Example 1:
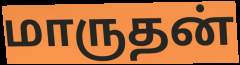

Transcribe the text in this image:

மாருதன்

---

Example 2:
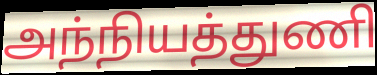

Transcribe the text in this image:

அந்நியத்துணி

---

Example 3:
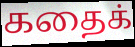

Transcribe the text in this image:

கதைக்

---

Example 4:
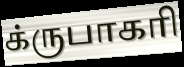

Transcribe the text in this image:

க்ருபாகரி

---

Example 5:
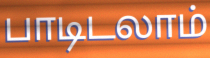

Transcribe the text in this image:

பாடிடலாம்